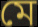
মে